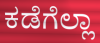
ಕಡೆಗೆಲ್ಲಾ